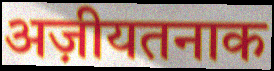
अज़ीयतनाक